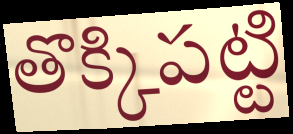
తొక్కిపట్టి